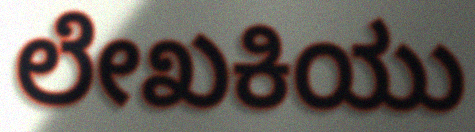
ಲೇಖಕಿಯು